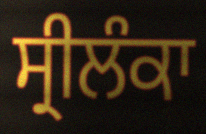
ਸ੍ਰੀਲੰਕਾ